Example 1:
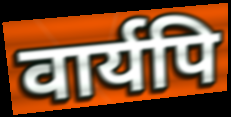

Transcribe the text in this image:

वार्यपि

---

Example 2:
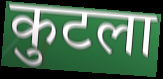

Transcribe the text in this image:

कुटला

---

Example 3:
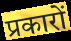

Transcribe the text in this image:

प्रकारों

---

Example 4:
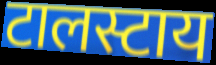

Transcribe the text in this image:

टालस्टाय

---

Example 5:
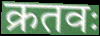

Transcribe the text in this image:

क्रतवः